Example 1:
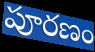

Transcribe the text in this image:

పూరణం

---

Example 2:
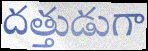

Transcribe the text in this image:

దత్తుడుగా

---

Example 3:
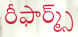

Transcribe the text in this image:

రీఫార్మ్స్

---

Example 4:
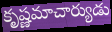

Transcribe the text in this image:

కృష్ణమాచార్యుడు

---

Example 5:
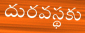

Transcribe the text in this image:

దురవస్థకు